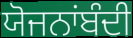
ਯੋਜਨਾਂਬੰਦੀ